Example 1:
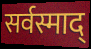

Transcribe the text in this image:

सर्वस्माद्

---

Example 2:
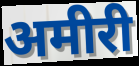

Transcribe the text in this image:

अमीरी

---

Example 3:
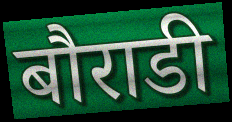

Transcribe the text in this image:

बौराडी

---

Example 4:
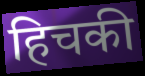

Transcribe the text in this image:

हिचकी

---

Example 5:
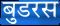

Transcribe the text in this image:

बुडरस